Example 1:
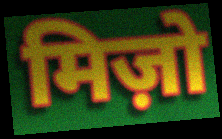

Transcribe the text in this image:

मिज़ो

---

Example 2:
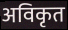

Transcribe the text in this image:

अविकृत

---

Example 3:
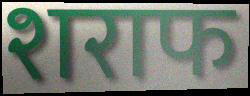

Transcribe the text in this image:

शराफ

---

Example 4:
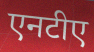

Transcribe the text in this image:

एनटीए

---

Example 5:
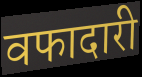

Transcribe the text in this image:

वफादारी